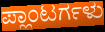
ಪ್ಲಾಂಟರ್ಗಳು